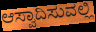
ಆಸ್ವಾದಿಸುವಲ್ಲಿ